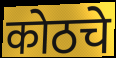
कोठचे